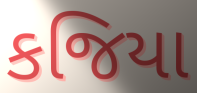
કજિયા